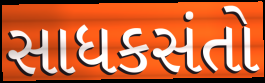
સાધકસંતો